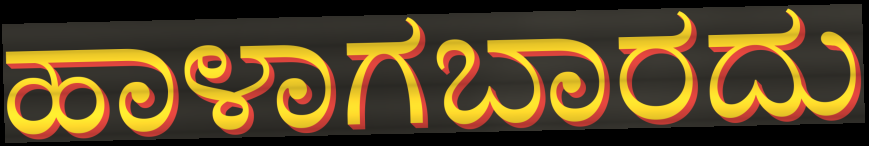
ಹಾಳಾಗಬಾರದು